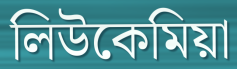
লিউকেমিয়া